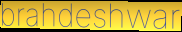
brahdeshwar